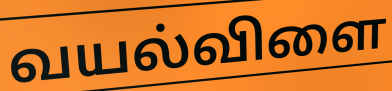
வயல்விளை